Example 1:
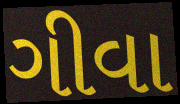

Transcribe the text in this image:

ગીવા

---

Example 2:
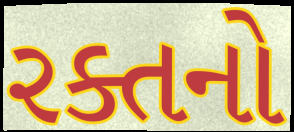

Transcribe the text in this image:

રક્તનો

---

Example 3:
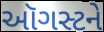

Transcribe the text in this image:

ઑગસ્ટને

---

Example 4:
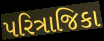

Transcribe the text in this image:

પરિત્રાજિકા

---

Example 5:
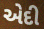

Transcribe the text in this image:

એદી